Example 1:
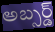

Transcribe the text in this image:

అబ్సర్డ్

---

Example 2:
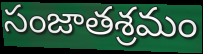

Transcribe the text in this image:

సంజాతశ్రమం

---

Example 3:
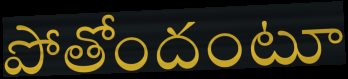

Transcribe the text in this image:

పోతోందంటూ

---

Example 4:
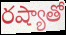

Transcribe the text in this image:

రష్యాతో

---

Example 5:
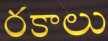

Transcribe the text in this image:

రకాలు